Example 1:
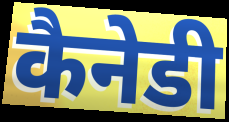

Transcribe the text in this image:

कैनेडी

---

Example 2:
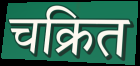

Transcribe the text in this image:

चक्रित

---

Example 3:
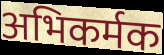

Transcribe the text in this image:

अभिकर्मक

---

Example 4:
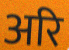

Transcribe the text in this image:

अरि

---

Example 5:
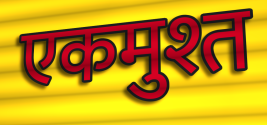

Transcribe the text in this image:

एकमुश्त